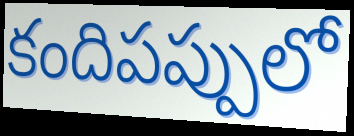
కందిపప్పులో